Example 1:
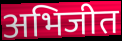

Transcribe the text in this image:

अभिजीत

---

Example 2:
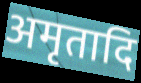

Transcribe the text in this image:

अमृतादि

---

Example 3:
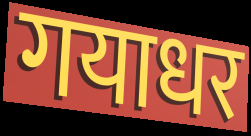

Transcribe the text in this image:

गयाधर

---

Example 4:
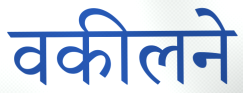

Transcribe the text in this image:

वकीलने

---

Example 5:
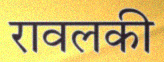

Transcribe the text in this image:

रावलकी